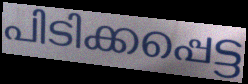
പിടിക്കപ്പെട്ട